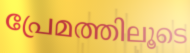
പ്രേമത്തിലൂടെ